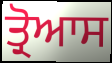
ਤ੍ਰੋਆਸ